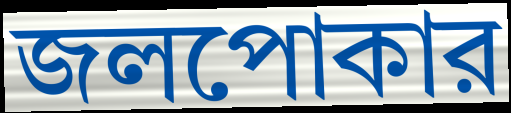
জলপোকার